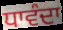
ਧਾਵੰਦਾ